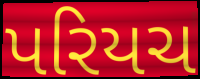
પરિયચ